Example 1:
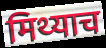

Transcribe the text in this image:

मिथ्याच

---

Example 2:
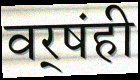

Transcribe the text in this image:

वर्षंही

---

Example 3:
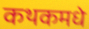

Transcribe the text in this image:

कथकमधे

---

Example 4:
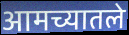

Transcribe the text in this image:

आमच्यातले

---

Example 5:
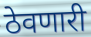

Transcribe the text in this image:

ठेवणारी